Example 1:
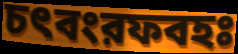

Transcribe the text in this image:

চৎবংরফবহঃ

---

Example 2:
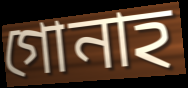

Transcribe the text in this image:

গোনাহ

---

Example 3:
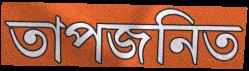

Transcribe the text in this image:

তাপজনিত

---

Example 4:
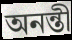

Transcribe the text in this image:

অনন্তী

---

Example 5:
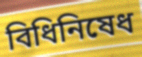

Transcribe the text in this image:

বিধিনিষেধ